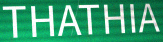
THATHIA